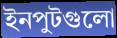
ইনপুটগুলো